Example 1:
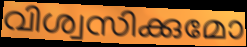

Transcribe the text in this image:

വിശ്വസിക്കുമോ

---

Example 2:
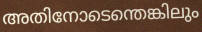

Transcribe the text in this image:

അതിനോടെന്തെങ്കിലും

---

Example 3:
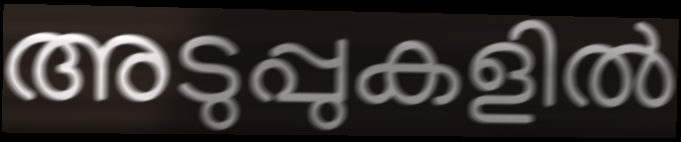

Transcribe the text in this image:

അടുപ്പുകളിൽ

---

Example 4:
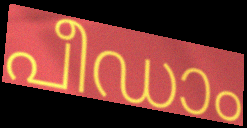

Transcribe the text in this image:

പീഡാം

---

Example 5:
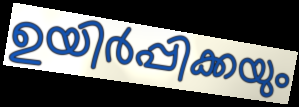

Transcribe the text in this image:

ഉയിർപ്പിക്കയും